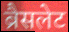
ब्रैसलेट